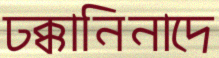
ঢক্কানিনাদে